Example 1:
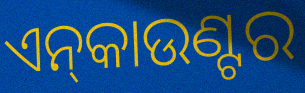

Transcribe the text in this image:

ଏନ୍‌କାଉଣ୍ଟର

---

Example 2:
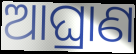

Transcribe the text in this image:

ଆଘ୍ରାଣ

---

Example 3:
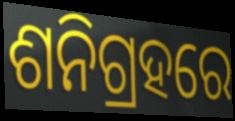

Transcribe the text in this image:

ଶନିଗ୍ରହରେ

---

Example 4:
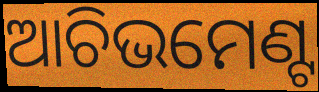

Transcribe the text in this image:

ଆଚିଭମେଣ୍ଟ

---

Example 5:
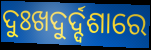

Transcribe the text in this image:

ଦୁଃଖଦୁର୍ଦ୍ଦଶାରେ